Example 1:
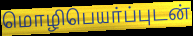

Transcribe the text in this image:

மொழிபெயர்ப்புடன்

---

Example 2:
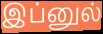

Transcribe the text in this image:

இப்னுல்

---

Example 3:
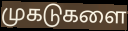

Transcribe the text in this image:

முகடுகளை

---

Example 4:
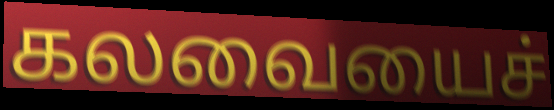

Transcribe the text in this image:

கலவையைச்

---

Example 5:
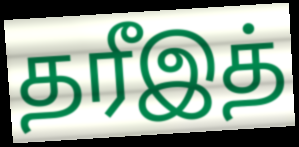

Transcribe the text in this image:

தரீஇத்